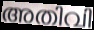
അതിവി